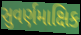
સુવર્ણમાક્ષિક